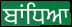
ਬਾਂਧਿਆ